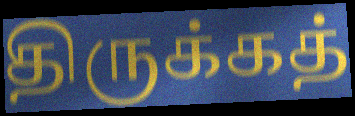
திருக்கத்